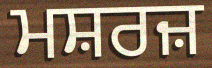
ਮਸ਼ਰਜ਼